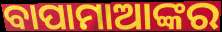
ବାପାମାଆଙ୍କର